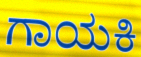
ಗಾಯಕಿ